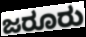
ಜರೂರು